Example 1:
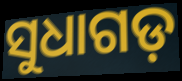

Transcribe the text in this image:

ସୁଧାଗଡ଼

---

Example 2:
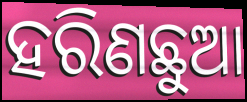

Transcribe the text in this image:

ହରିଣଛୁଆ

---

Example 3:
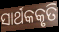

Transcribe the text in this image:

ସାର୍ଥକକୃତି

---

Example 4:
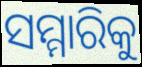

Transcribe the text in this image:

ସମ୍ମାରିକୁ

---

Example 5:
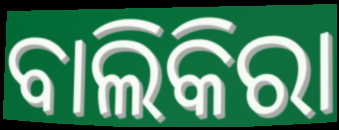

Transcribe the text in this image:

ବାଲିକିରା